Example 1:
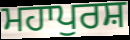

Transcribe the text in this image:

ਮਹਾਪੁਰਸ਼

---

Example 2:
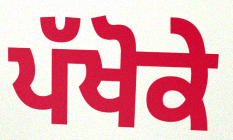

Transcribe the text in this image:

ਪੱਖੋਕੇ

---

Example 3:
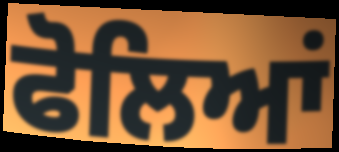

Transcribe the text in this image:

ਫੋਲਿਆਂ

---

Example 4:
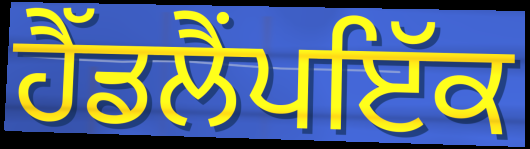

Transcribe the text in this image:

ਹੈੱਡਲੈਂਪਇੱਕ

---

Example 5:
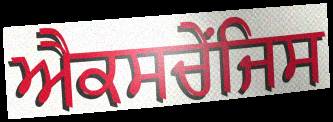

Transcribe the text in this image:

ਐਕਸਚੇਂਜਿਸ